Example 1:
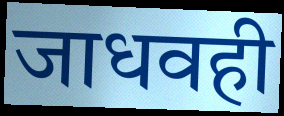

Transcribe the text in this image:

जाधवही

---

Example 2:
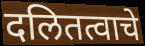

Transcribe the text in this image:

दलितत्वाचे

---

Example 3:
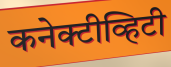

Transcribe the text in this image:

कनेक्टीव्हिटी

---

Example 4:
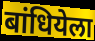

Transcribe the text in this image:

बांधियेला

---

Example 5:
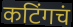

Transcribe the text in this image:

कटिंगचं